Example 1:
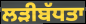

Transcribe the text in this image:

ਲੜੀਬੱਧਤਾ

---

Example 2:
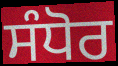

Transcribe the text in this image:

ਸੰਧੋਰ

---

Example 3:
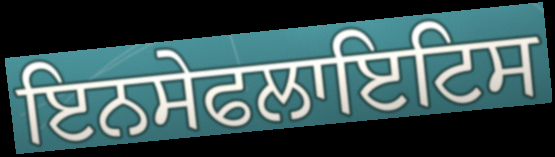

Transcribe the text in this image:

ਇਨਸੇਫਲਾਇਟਿਸ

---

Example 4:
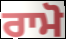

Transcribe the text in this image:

ਰਾਮੋ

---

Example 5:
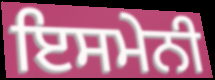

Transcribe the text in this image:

ਇਸਮੇਨੀ